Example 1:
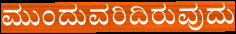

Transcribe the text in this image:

ಮುಂದುವರಿದಿರುವುದು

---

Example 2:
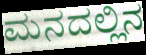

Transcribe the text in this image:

ಮನದಲ್ಲಿನ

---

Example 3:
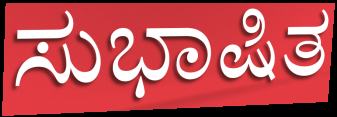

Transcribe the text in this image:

ಸುಭಾಷಿತ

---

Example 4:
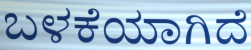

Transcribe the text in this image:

ಬಳಕೆಯಾಗಿದೆ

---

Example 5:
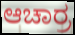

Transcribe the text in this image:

ಆಚಾರ್ರ